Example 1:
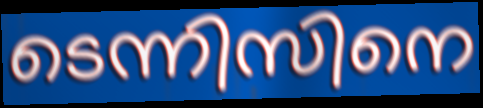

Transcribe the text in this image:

ടെന്നിസിനെ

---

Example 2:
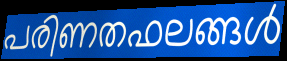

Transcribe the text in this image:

പരിണതഫലങ്ങൾ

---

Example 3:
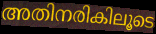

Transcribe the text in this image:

അതിനരികിലൂടെ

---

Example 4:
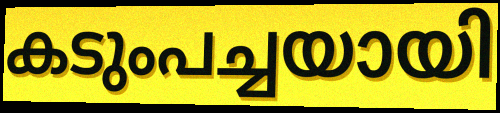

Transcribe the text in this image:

കടുംപച്ചയായി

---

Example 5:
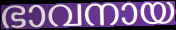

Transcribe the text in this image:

ഭാവനായ